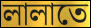
লালাতে